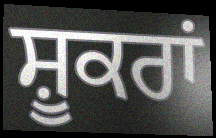
ਸ਼ੂਕਰਾਂ